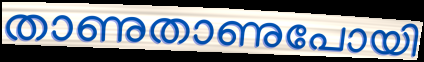
താണുതാണുപോയി